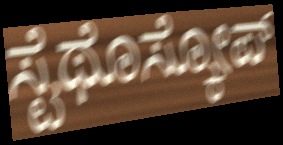
ಸ್ಟೆಥೊಸ್ಕೋಪ್